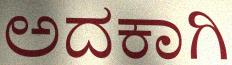
ಅದಕಾಗಿ